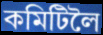
কমিটিলৈ